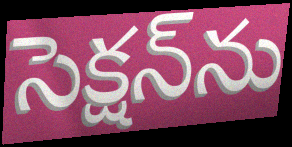
సెక్షన్‌ను